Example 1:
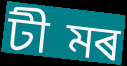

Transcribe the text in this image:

টীমৰ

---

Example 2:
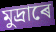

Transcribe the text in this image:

মুদ্ৰাৰে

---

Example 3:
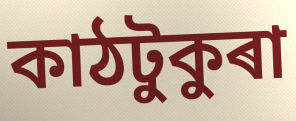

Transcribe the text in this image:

কাঠটুকুৰা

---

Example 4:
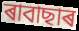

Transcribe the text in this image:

ৰাবাছাৰ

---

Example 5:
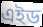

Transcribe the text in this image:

এইড